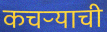
कचऱ्याची